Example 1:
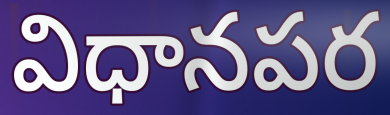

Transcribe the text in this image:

విధానపర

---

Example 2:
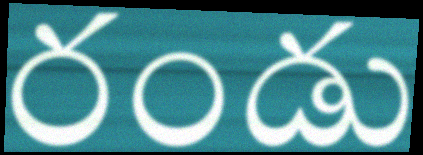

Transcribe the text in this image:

రండు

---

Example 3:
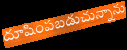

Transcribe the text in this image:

దూషింపబడుచున్నాను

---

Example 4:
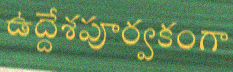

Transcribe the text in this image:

ఉద్దేశపూర్వకంగా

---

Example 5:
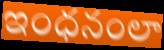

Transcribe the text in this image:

ఇంధనంలా